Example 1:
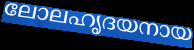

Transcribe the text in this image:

ലോലഹൃദയനായ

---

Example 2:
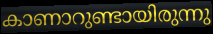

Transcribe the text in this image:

കാണാറുണ്ടായിരുന്നു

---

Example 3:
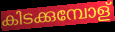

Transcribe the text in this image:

കിടക്കുമ്പോള്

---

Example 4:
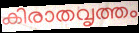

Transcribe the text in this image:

കിരാതവൃത്തം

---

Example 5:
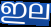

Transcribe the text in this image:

ഇല